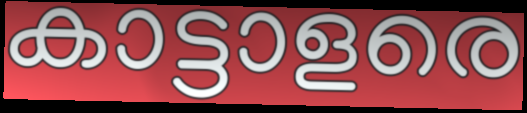
കാട്ടാളരെ